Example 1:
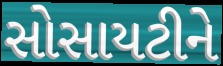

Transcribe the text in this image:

સોસાયટીને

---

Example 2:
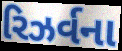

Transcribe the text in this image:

રિઝર્વના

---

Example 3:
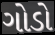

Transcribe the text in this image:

ગોડો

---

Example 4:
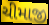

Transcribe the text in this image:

ચીમાજી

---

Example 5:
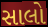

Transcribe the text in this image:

સાલો